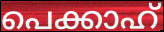
പെക്കാഹ്